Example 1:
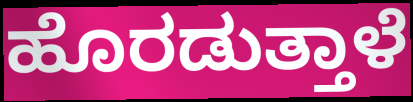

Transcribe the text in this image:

ಹೊರಡುತ್ತಾಳೆ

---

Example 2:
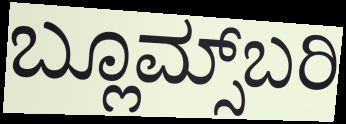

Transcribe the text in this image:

ಬ್ಲೂಮ್ಸ್‌ಬರಿ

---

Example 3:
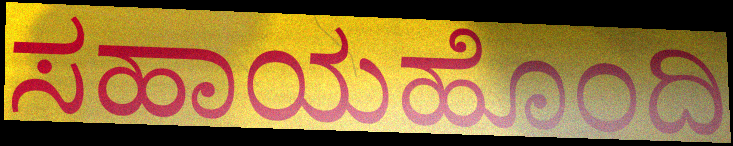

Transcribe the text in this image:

ಸಹಾಯಹೊಂದಿ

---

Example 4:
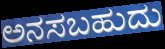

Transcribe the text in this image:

ಅನಸಬಹುದು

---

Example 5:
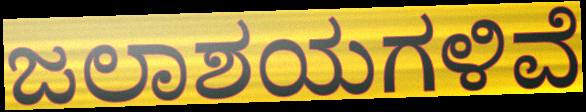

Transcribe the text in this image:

ಜಲಾಶಯಗಳಿವೆ